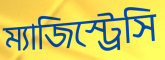
ম্যাজিস্ট্রেসি